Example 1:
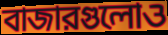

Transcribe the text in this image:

বাজারগুলোও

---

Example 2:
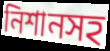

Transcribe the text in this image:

নিশানসহ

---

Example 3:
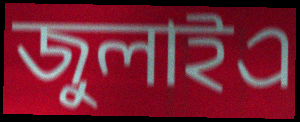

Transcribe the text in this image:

জুলাইএ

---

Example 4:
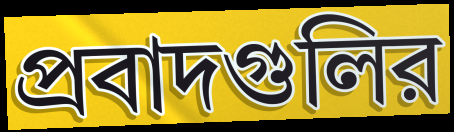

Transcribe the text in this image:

প্রবাদগুলির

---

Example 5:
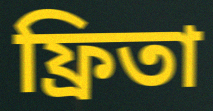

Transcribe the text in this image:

ফ্রিতা